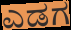
ಎಡಗ